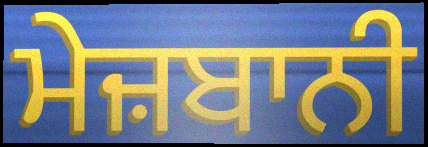
ਮੇਜ਼ਬਾਨੀ